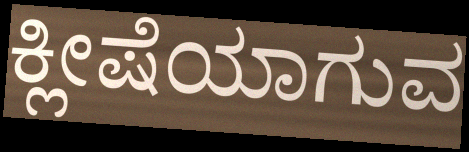
ಕ್ಲೀಷೆಯಾಗುವ